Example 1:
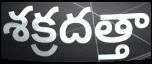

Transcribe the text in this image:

శక్రదత్తా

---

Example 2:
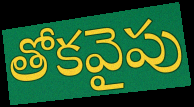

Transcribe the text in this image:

తోకవైపు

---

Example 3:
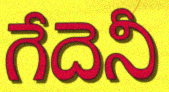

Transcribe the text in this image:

గేదెనీ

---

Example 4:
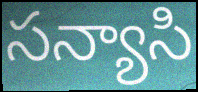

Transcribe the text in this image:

సన్యాసి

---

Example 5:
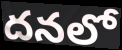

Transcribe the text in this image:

దనలో